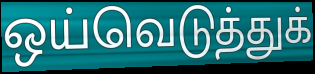
ஒய்வெடுத்துக்